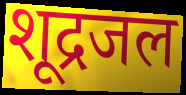
शूद्रजल